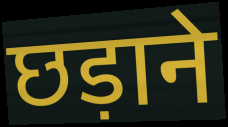
छड़ाने